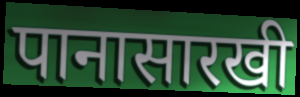
पानासारखी